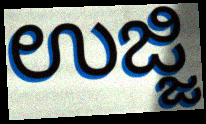
ಉಜ್ಜಿ